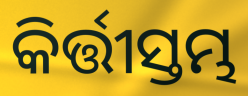
କିର୍ତ୍ତୀସ୍ତମ୍ଭ